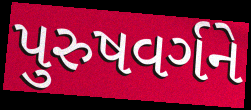
પુરુષવર્ગને